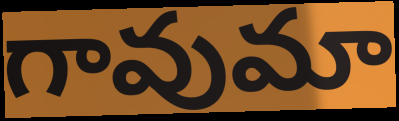
గావుమా